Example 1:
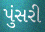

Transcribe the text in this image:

પુંસરી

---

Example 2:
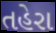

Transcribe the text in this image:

તહેરા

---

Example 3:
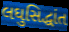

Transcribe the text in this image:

લઘુસિદ્ધાંત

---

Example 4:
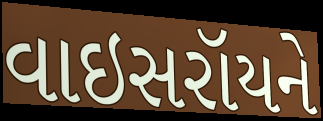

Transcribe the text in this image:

વાઇસરૉયને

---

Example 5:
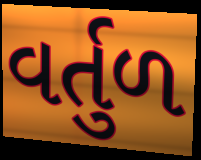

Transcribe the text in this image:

વર્તુળ